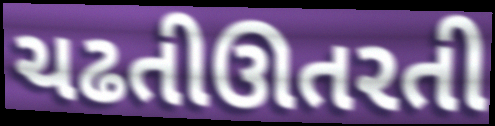
ચઢતીઊતરતી